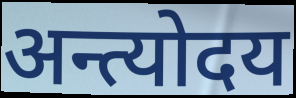
अन्त्योदय